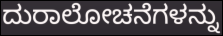
ದುರಾಲೋಚನೆಗಳನ್ನು